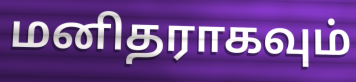
மனிதராகவும்